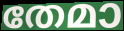
തേമാ